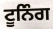
ਟੂਨਿੰਗ